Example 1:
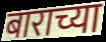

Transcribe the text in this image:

बाराच्या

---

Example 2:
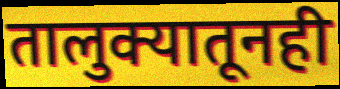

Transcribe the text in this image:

तालुक्यातूनही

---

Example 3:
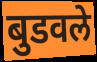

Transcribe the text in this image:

बुडवले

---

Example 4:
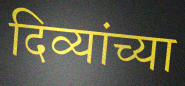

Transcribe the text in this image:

दिव्यांच्या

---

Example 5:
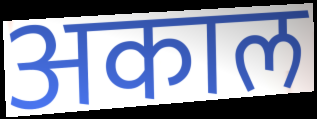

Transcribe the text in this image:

अकाल